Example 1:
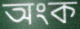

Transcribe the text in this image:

অংক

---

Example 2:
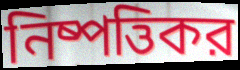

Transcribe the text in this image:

নিষ্পত্তিকর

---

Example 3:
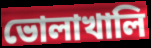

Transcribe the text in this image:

ভোলাখালি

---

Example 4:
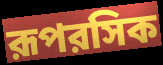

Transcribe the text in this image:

রূপরসিক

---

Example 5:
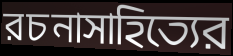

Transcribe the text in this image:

রচনাসাহিত্যের